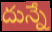
దున్నే